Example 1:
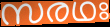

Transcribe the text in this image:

സരഥഃ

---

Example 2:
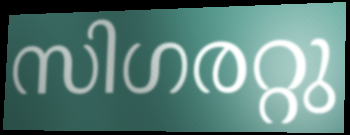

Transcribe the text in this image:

സിഗരറ്റു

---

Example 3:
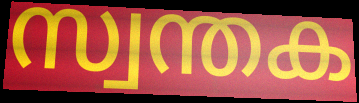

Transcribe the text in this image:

സ്വന്തക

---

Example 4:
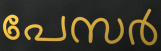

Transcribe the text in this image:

പേസർ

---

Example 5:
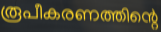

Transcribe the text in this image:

രൂപീകരണത്തിന്റെ